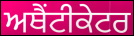
ਅਥੈਂਟੀਕੇਟਰ